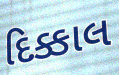
દિક્કાલ